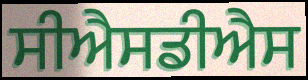
ਸੀਐਸਡੀਐਸ